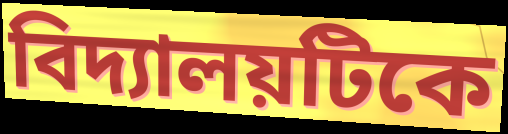
বিদ্যালয়টিকে